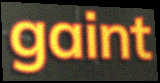
gaint